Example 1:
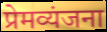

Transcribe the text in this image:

प्रेमव्यंजना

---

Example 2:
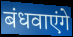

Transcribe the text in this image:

बंधवाएंगे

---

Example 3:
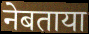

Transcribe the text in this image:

नेबताया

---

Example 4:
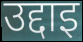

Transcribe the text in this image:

उद्दाइ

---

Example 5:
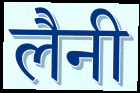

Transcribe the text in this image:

लैनी